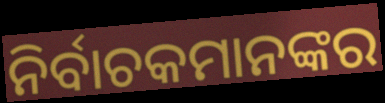
ନିର୍ବାଚକମାନଙ୍କର